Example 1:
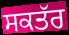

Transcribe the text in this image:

ਸਕਤੱਰ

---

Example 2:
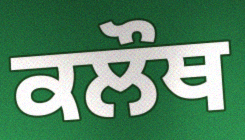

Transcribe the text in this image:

ਕਲੌਥ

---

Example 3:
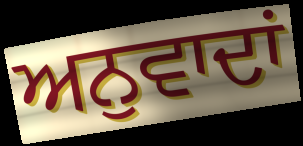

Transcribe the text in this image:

ਅਨੁਵਾਦਾਂ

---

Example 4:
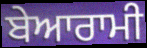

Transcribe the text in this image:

ਬੇਆਰਾਮੀ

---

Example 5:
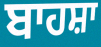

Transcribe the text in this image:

ਬਾਹਸ਼ਾ